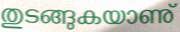
തുടങ്ങുകയാണു്